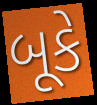
બૂકે